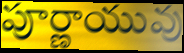
పూర్ణాయువు